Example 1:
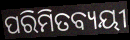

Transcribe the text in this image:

ପରିମିତବ୍ୟୟୀ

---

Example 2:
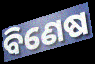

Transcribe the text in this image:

ବିଣେଷ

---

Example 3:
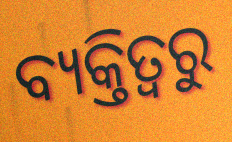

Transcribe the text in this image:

ବ୍ୟକ୍ତିତ୍ୱରୁ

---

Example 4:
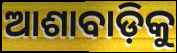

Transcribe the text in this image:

ଆଶାବାଡ଼ିକୁ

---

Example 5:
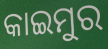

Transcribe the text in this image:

କାଇମୁର